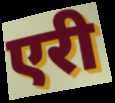
एरी